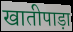
खातीपाड़ा